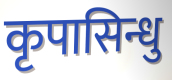
कृपासिन्धु